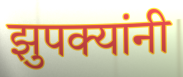
झुपक्यांनी